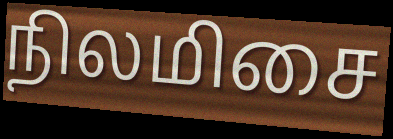
நிலமிசை